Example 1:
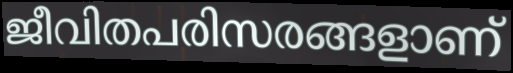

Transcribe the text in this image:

ജീവിതപരിസരങ്ങളാണ്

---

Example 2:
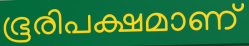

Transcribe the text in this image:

ഭൂരിപക്ഷമാണ്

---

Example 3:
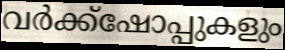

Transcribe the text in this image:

വർക്ക്ഷോപ്പുകളും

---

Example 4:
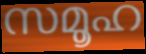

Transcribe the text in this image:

സമൂഹ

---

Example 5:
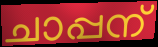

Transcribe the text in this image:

ചാപ്പന്